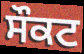
ਸੌਕਟ